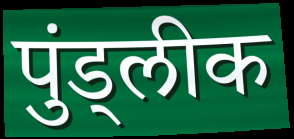
पुंड्लीक